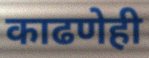
काढणेही